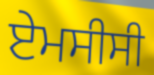
ਏਮਸੀਸੀ